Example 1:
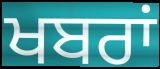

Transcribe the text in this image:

ਖਬਰਾਂ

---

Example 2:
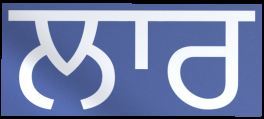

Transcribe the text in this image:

ਲਾਰ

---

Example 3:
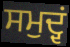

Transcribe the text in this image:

ਸਮੁਦ੍ਦਂ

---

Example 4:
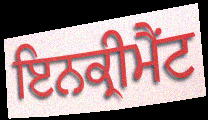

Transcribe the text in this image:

ਇਨਕ੍ਰੀਮੈਂਟ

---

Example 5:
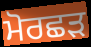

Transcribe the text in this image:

ਮੋਰਛੜ